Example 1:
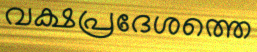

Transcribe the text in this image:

വക്ഷപ്രദേശത്തെ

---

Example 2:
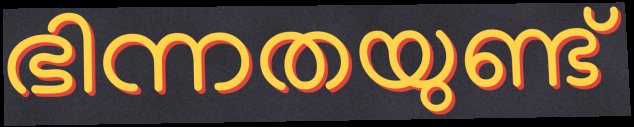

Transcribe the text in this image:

ഭിന്നതയുണ്ട്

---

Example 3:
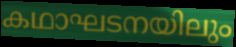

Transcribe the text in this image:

കഥാഘടനയിലും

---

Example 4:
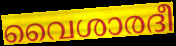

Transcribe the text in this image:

വൈശാരദീ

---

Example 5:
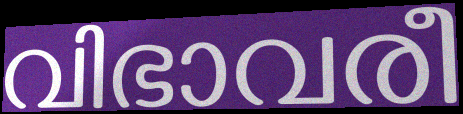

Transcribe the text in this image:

വിഭാവരീ